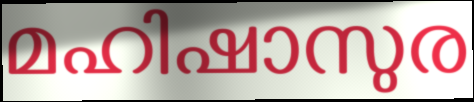
മഹിഷാസുര